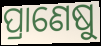
ପ୍ରାଣେଷୁ